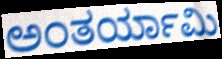
ಅಂತರ್ಯಾಮಿ